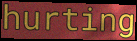
hurting